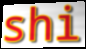
shi